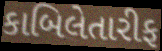
કાબિલેતારીફ